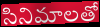
సినిమాలతో